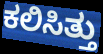
ಕಲಿಸಿತ್ತು